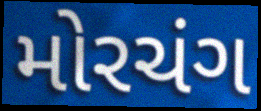
મોરચંગ